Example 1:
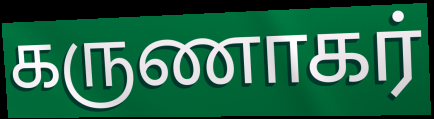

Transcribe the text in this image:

கருணாகர்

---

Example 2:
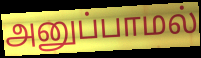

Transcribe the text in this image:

அனுப்பாமல்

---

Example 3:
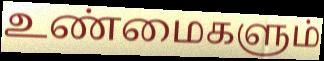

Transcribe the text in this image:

உண்மைகளும்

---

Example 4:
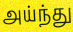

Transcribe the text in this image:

அய்ந்து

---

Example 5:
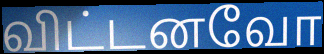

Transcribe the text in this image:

விட்டனவோ